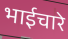
भाईचारे